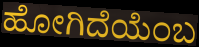
ಹೋಗಿದೆಯೆಂಬ